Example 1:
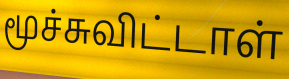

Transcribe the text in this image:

மூச்சுவிட்டாள்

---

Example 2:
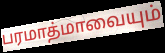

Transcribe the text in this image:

பரமாத்மாவையும்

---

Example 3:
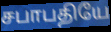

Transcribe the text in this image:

சபாபதியே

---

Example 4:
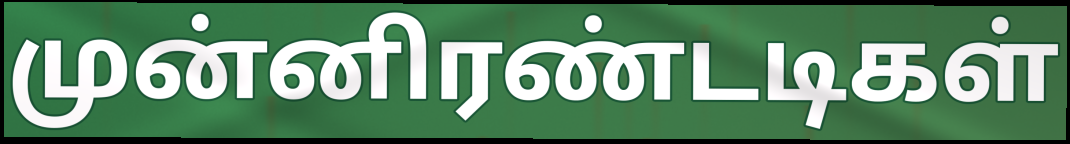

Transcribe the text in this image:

முன்னிரண்டடிகள்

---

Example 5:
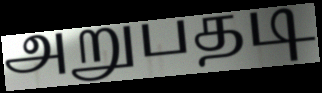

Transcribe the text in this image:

அறுபதடி